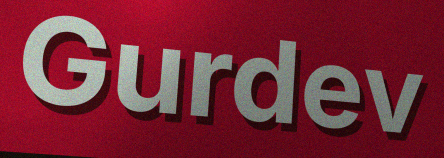
Gurdev